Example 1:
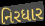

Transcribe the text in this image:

નિરધાર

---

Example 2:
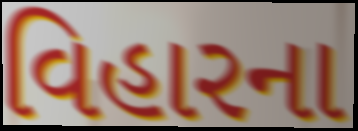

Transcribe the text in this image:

વિહારના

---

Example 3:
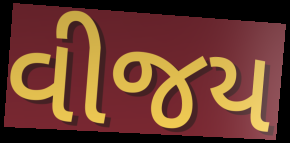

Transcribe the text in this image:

વીજય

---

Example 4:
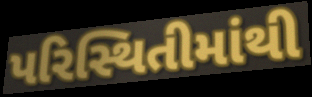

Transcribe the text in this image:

પરિસ્થિતીમાંથી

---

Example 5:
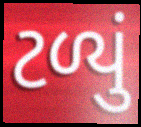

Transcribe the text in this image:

ટળ્યું